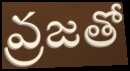
వ్రజతో